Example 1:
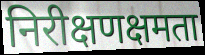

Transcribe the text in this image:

निरीक्षणक्षमता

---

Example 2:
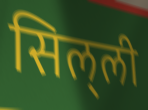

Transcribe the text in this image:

सिल्ली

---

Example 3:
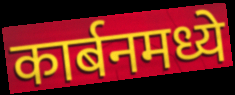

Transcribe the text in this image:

कार्बनमध्ये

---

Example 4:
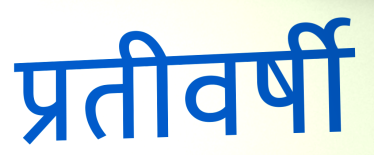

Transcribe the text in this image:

प्रतीवर्षी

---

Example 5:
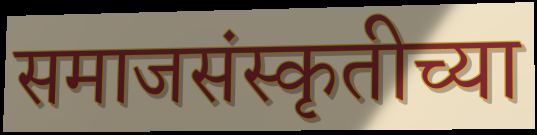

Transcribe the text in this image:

समाजसंस्कृतीच्या